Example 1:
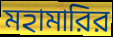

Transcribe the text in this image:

মহামারির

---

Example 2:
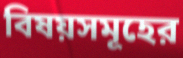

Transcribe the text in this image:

বিষয়সমূহের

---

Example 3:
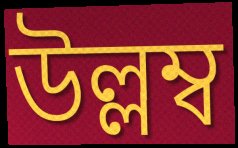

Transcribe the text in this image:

উল্লম্ব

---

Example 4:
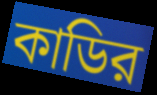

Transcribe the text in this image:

কাডির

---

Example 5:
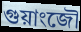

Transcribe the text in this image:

গুয়াংজৌ